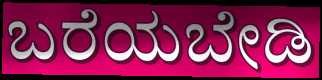
ಬರೆಯಬೇಡಿ